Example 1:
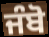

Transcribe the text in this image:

ਜੰਬੋ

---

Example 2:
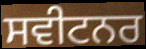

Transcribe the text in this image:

ਸਵੀਟਨਰ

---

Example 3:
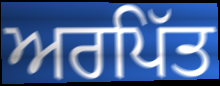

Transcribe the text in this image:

ਅਰਪਿੱਤ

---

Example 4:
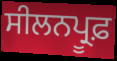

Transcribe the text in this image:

ਸੀਲਨਪ੍ਰੂਫ਼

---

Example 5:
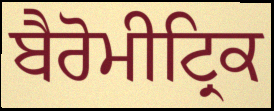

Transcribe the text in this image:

ਬੈਰੋਮੀਟ੍ਰਿਕ